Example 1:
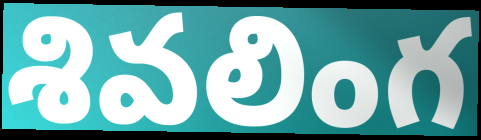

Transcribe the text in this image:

శివలింగ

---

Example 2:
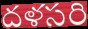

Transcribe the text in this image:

దళసరి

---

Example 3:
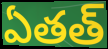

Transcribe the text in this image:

ఏతత్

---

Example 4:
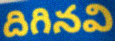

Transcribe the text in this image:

దిగినవి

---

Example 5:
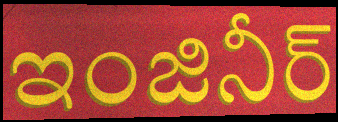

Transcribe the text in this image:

ఇంజినీర్